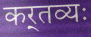
कर्तव्यः